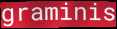
graminis